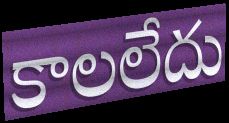
కాలలేదు